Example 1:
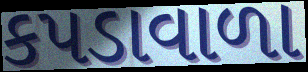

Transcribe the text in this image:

કપડાવાળા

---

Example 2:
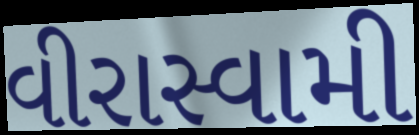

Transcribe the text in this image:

વીરાસ્વામી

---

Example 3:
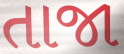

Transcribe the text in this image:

તાજા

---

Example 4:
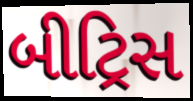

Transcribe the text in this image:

બીટ્રિસ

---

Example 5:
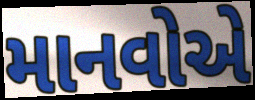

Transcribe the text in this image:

માનવોએ